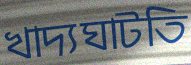
খাদ্যঘাটতি